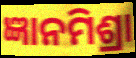
ଜ୍ଞାନମିଶ୍ରା